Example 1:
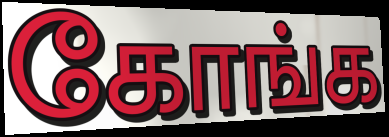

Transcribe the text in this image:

கோங்க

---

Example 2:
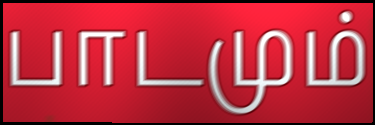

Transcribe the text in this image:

பாடமும்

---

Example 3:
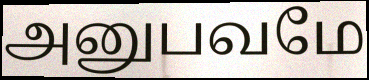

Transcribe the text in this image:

அனுபவமே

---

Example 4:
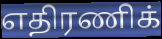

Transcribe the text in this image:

எதிரணிக்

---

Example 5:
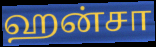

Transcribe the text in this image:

ஹன்சா